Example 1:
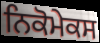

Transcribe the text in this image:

ਨਿਕੋਮੇਕਸ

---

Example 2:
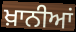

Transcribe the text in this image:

ਖ਼ਾਨੀਆਂ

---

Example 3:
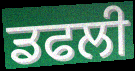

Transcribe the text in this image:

ਡਫਲੀ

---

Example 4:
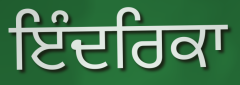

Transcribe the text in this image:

ਇੰਦਰਿਕਾ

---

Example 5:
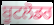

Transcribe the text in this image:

ਬੂਟਲੋਡਰ